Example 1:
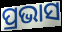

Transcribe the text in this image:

ପ୍ରଭାସ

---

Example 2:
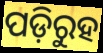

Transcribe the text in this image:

ପଡ଼ିରୁହ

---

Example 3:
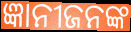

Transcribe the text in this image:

ଜ୍ଞାନୀଜନଙ୍କ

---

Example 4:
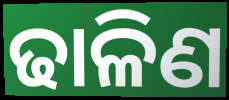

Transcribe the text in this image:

ଢାଳିଣ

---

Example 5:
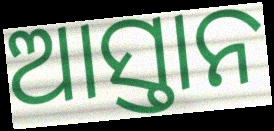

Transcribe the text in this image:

ଆସ୍ତାନ